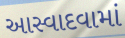
આસ્વાદવામાં